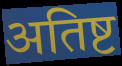
अतिष्ट